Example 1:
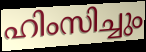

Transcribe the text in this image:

ഹിംസിച്ചും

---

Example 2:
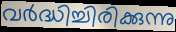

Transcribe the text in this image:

വർദ്ധിച്ചിരിക്കുന്നു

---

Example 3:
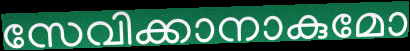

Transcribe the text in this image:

സേവിക്കാനാകുമോ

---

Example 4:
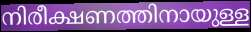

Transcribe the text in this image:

നിരീക്ഷണത്തിനായുള്ള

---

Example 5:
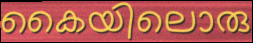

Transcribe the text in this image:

കൈയിലൊരു